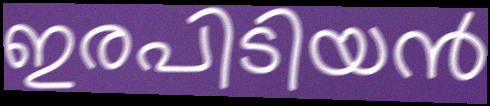
ഇരപിടിയൻ